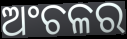
ଅଂଚଳର